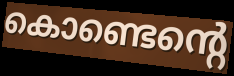
കൊണ്ടെന്റെ